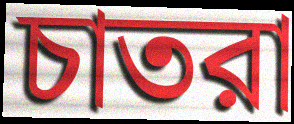
চাতরা